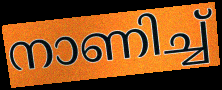
നാണിച്ച്